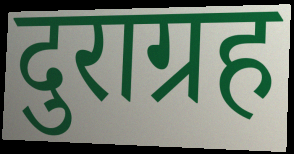
दुराग्रह